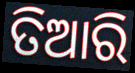
ତିଆରି